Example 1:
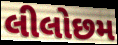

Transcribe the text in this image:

લીલોછમ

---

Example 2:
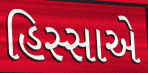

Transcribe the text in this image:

હિસ્સાએ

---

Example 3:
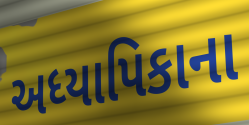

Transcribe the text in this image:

અધ્યાપિકાના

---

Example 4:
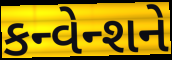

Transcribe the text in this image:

કન્વેન્શને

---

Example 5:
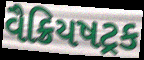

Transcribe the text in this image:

વૈક્રિયષટ્રક